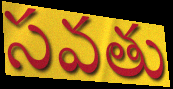
సవతు